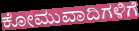
ಕೋಮುವಾದಿಗಳಿಗೆ